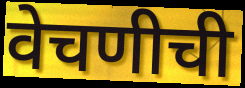
वेचणीची